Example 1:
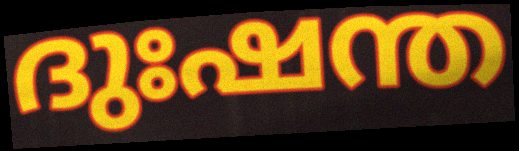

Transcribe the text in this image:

ദുഃഷന്ത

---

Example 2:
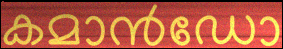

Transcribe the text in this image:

കമാൻഡോ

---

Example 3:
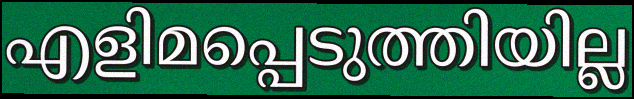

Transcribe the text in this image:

എളിമപ്പെടുത്തിയില്ല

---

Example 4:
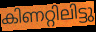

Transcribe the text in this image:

കിണറ്റിലിട്ടു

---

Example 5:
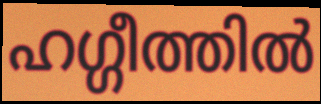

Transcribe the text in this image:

ഹഗ്ഗീത്തിൽ